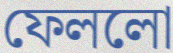
ফেললো